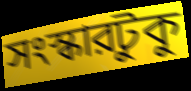
সংস্কারটুকু